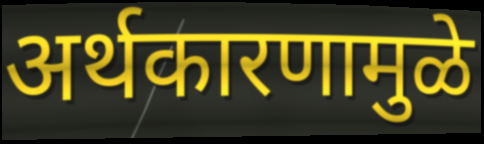
अर्थकारणामुळे